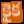
కైక